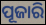
ପୂଜାରି